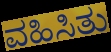
ವಹಿಸಿತು